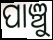
ପାଞ୍ଚୁ